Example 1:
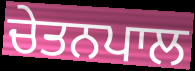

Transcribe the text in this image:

ਚੇਤਨਪਾਲ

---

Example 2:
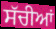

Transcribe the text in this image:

ਸੱਚੀਆਂ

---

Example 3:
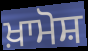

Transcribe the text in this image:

ਖ਼ਾਮੋਸ਼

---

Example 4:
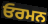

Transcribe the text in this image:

ਓਰਮਨ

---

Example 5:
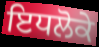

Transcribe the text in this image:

ਇਧਲੋਕੇ